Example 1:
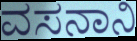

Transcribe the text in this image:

ವಸನಾನಿ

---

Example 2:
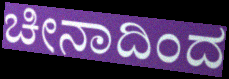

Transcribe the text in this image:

ಚೀನಾದಿಂದ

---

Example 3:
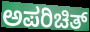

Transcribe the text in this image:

ಅಪರಿಚಿತ್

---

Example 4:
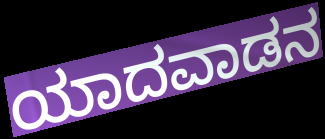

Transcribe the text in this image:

ಯಾದವಾಡನ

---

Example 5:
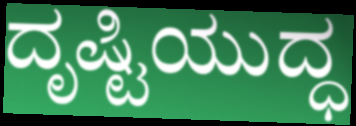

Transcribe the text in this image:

ದೃಷ್ಟಿಯುದ್ಧ